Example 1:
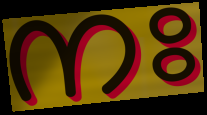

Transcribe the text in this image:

നഃ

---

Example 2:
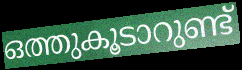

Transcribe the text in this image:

ഒത്തുകൂടാറുണ്ട്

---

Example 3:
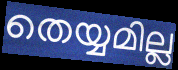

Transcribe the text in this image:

തെയ്യമില്ല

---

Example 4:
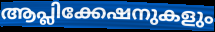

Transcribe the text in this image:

ആപ്ലിക്കേഷനുകളും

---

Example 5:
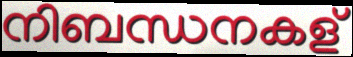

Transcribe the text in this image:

നിബന്ധനകള്